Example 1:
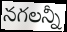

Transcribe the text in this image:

నగలన్నీ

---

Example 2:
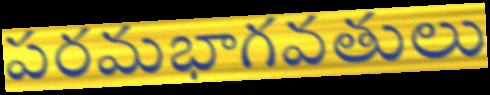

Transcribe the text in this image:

పరమభాగవతులు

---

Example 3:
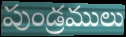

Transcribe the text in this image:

పుండ్రములు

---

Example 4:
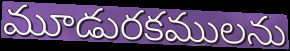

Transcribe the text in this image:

మూడురకములను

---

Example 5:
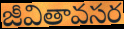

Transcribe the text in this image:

జీవితావసర